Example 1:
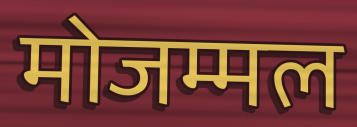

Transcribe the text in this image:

मोजम्मल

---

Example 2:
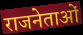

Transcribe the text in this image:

राजनेताओं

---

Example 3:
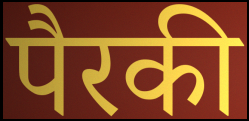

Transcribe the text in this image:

पैरकी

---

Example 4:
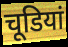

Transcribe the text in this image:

चूडियां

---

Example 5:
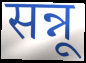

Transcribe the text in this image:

सन्नू